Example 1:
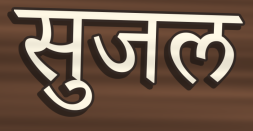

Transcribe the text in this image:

सुजल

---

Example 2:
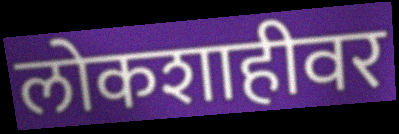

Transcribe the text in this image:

लोकशाहीवर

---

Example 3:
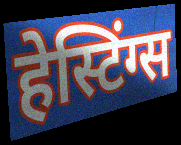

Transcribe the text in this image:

हेस्टिंग्स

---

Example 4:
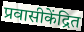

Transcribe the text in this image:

प्रवासीकेंद्रित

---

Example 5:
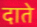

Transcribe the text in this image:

दाते